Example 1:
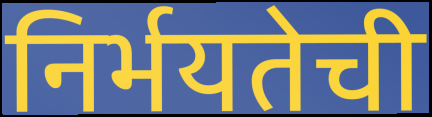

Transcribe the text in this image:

निर्भयतेची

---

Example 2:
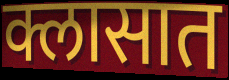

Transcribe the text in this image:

क्लासात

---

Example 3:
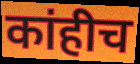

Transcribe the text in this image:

कांहीच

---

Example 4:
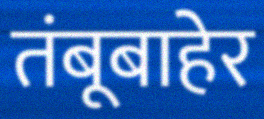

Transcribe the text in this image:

तंबूबाहेर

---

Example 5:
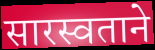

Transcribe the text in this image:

सारस्वताने